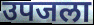
उपजला